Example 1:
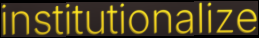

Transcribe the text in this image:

institutionalize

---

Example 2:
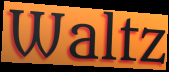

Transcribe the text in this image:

Waltz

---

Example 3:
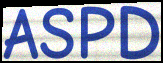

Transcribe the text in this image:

ASPD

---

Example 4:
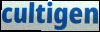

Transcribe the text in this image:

cultigen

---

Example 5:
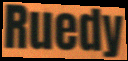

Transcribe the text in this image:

Ruedy